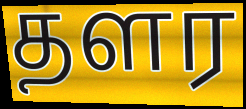
தளர